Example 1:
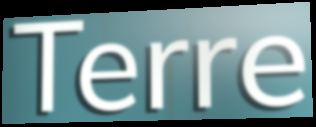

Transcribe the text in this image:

Terre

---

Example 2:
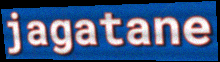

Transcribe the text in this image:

jagatane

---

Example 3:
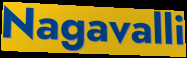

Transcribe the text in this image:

Nagavalli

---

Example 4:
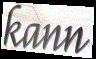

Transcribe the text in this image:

kann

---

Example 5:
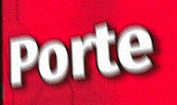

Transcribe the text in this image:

Porte